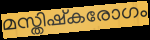
മസ്തിഷ്കരോഗം